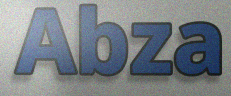
Abza